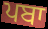
ਪਬਾ